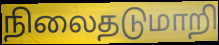
நிலைதடுமாறி